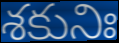
శకునిః